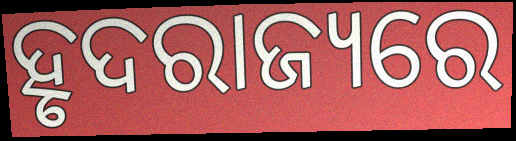
ହୃଦରାଜ୍ୟରେ